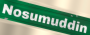
Nosumuddin